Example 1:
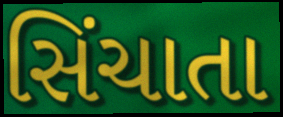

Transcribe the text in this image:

સિંચાતા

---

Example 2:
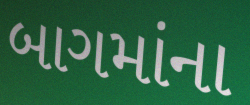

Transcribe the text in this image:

બાગમાંના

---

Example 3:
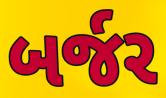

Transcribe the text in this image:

બર્જર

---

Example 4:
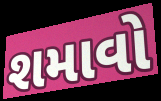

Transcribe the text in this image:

શમાવો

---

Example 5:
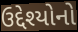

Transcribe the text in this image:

ઉદ્દેશ્યોનો